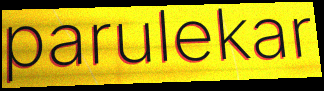
parulekar